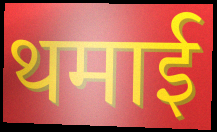
थमाई